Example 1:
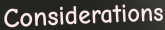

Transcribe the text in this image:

Considerations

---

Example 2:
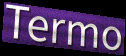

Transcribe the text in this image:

Termo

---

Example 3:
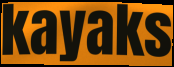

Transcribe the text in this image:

kayaks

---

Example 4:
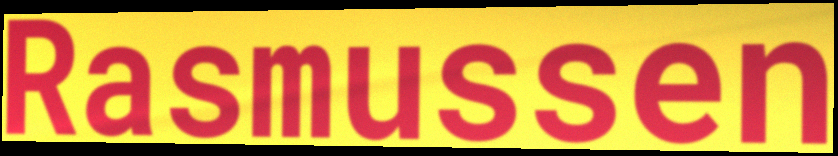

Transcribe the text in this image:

Rasmussen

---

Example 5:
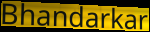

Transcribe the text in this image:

Bhandarkar